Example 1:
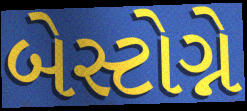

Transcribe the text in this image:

બેસ્ટોગ્ને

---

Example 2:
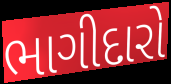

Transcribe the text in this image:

ભાગીદારો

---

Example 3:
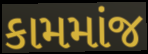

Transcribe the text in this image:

કામમાંજ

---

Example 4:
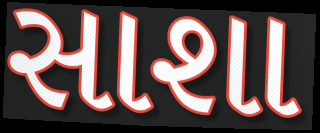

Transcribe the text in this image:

સાશા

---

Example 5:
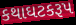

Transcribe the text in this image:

કથાઘટકરૂપ